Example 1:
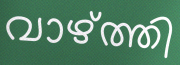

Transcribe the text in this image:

വാഴ്ത്തി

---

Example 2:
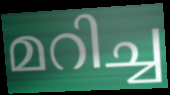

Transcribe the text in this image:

മറിച്ച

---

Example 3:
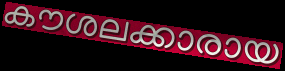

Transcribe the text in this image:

കൗശലക്കാരായ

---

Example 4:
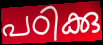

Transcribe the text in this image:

പഠിക്കു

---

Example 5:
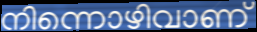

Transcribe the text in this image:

നിന്നൊഴിവാണ്